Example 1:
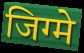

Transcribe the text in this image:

जिग्मे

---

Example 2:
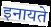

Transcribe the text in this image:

इनायते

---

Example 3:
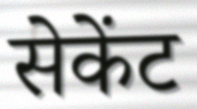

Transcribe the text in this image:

सेकेंट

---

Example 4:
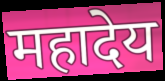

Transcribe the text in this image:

महादेय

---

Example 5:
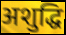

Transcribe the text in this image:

अशुद्धि